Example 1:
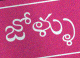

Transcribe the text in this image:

జోళ్ళు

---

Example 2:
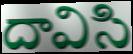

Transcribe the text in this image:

దావిసి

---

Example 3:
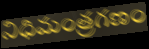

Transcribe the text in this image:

నిధిమంత్రగణం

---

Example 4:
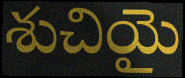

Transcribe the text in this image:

శుచియై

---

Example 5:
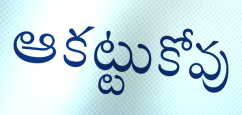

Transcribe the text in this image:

ఆకట్టుకోవు